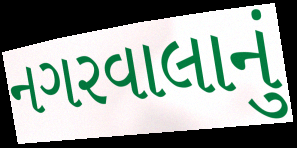
નગરવાલાનું